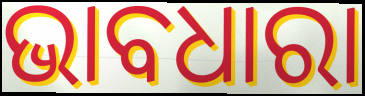
ଭାବଧାରା